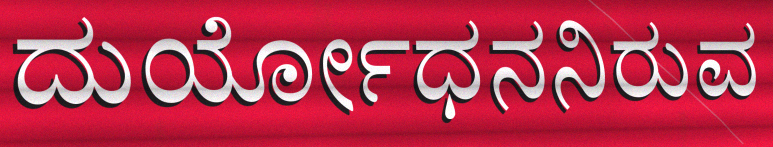
ದುರ್ಯೋಧನನಿರುವ